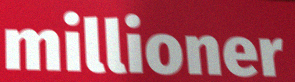
millioner